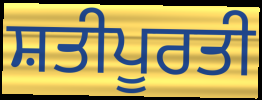
ਸ਼ਤੀਪੂਰਤੀ